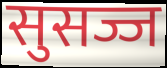
सुसज्ज